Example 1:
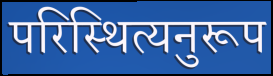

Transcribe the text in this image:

परिस्थित्यनुरूप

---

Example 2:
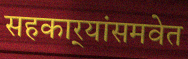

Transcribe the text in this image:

सहकार्यांसमवेत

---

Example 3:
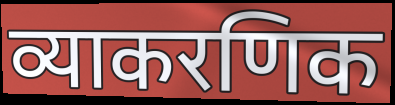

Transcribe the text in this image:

व्याकरणिक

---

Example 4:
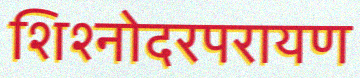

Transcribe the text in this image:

शिश्नोदरपरायण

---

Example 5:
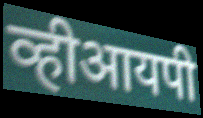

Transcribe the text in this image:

व्हीआयपी